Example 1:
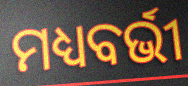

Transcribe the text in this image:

ମଧ୍ଯବର୍ଭୀ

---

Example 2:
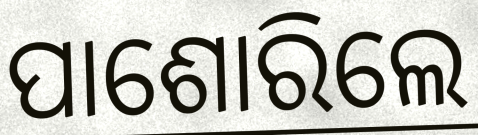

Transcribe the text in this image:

ପାଶୋରିଲେ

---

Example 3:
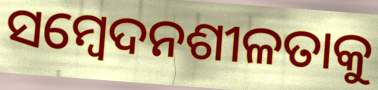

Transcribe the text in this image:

ସମ୍ବେଦନଶୀଳତାକୁ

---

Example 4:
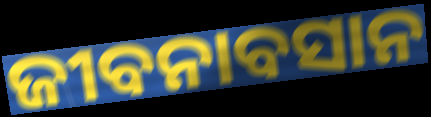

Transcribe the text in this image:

ଜୀବନାବସାନ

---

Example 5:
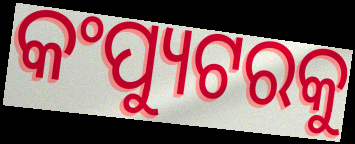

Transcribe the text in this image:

କଂପ୍ୟୁଟରକୁ